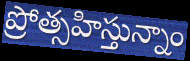
ప్రోత్సహిస్తున్నాం